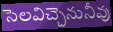
సెలవిచ్చెనునీవు